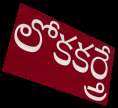
లోకకర్త్రే